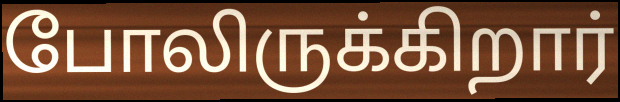
போலிருக்கிறார்